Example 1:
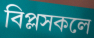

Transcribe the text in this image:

বিপ্লসকলে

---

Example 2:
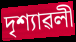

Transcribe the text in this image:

দৃশ্যাৱলী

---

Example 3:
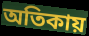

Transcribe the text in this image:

অতিকায়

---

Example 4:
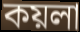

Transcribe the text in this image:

কয়লা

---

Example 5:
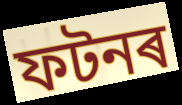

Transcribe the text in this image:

ফটনৰ